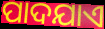
ପାଦଯାଏ